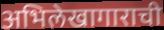
अभिलेखागाराची